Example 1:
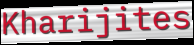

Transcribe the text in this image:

Kharijites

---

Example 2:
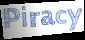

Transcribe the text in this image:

Piracy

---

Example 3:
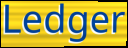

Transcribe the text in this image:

Ledger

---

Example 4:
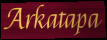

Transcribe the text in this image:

Arkatapa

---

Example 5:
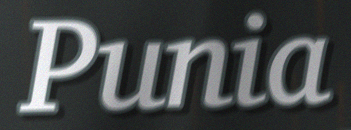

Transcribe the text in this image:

Punia